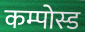
कम्पोस्ड